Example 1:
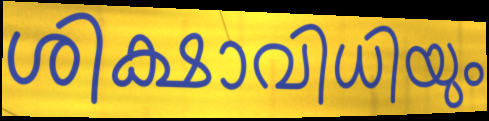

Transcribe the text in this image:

ശിക്ഷാവിധിയും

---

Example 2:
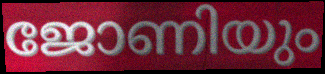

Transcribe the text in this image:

ജോണിയും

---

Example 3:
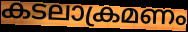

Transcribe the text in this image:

കടലാക്രമണം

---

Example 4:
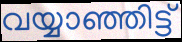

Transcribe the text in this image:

വയ്യാഞ്ഞിട്ട്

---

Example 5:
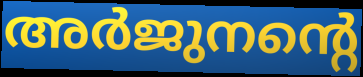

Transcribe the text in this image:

അർജുനന്റെ